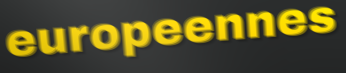
europeennes